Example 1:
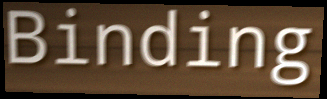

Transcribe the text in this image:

Binding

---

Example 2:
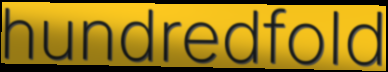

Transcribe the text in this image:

hundredfold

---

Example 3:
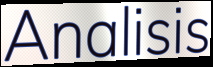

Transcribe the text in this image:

Analisis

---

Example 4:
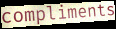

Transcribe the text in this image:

compliments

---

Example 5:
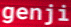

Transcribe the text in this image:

genji